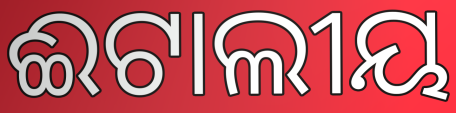
ଈଟାଲୀୟ